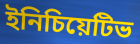
ইনিচিয়েটিভ